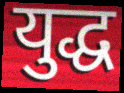
युद्ध